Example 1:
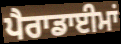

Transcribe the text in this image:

ਪੈਰਾਡਾਈਮਾਂ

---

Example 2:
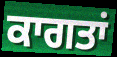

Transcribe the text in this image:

ਕਾਗਤਾਂ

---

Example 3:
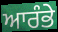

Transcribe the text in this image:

ਆਰੰਭੇ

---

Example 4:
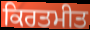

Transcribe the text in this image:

ਕਿਰਤਮੀਤ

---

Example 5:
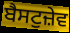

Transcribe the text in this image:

ਬੈਸਟੁਜ਼ੇਵ